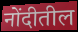
नोंदीतील